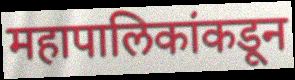
महापालिकांकडून